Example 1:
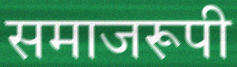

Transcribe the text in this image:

समाजरूपी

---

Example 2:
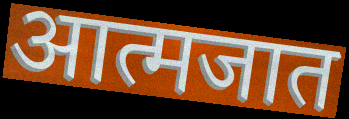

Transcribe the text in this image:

आत्मजात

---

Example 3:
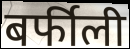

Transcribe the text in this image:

बर्फीली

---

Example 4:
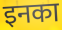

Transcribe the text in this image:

इनका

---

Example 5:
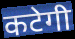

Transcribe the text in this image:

कटेगी